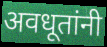
अवधूतांनी